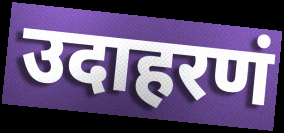
उदाहरणं